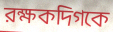
রক্ষকদিগকে